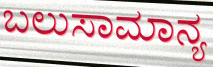
ಬಲುಸಾಮಾನ್ಯ